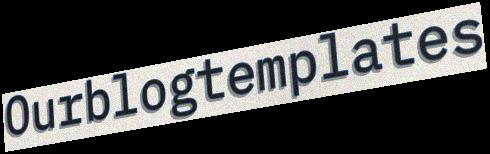
Ourblogtemplates